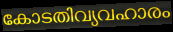
കോടതിവ്യവഹാരം